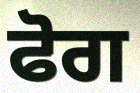
ਫੋਗ